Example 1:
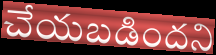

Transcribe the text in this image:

చేయబడిందని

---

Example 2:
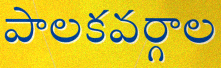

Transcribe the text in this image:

పాలకవర్గాల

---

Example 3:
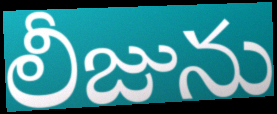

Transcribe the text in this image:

లీజును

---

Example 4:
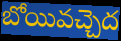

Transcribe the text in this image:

బోయివచ్చెద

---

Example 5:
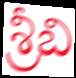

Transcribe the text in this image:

శ్రీబి